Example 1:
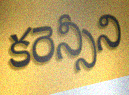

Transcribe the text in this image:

కరెన్సీని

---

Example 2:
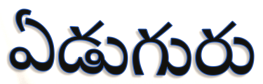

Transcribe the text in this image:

ఏడుగురు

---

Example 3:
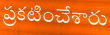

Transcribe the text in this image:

ప్రకటించేశారు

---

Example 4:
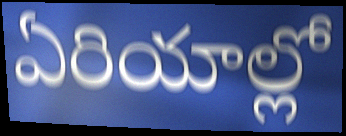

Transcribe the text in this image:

ఏరియాల్లో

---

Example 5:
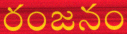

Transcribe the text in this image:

రంజనం